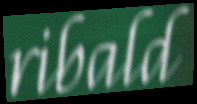
ribald